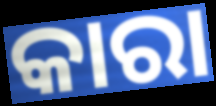
କାରା